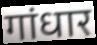
गांधार